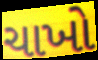
ચાખો